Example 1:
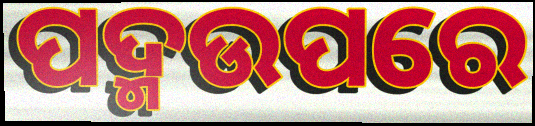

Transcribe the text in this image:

ପଦ୍ମଉପରେ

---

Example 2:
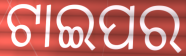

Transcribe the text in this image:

ଟାଇପର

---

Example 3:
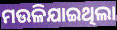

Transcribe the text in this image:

ମଉଳିଯାଇଥିଲା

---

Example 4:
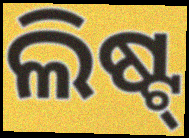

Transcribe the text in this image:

ଲିଷ୍ଟ୍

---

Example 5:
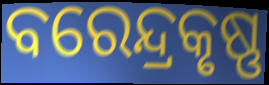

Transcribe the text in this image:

ବରେନ୍ଦ୍ରକୃଷ୍ଣ